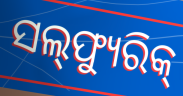
ସଲ୍‌ଫ୍ୟୁରିକ୍